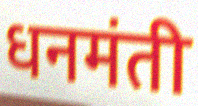
धनमंती